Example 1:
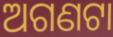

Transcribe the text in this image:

ଅଗଣଟା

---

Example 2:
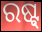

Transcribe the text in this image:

ରଷ୍ଟ୍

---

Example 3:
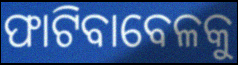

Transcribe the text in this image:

ଫାଟିବାବେଳକୁ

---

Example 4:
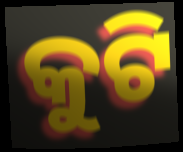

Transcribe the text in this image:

କୁଟି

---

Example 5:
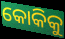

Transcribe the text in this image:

କୋକିକୁ